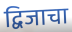
द्विजाचा